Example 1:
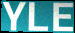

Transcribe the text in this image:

YLE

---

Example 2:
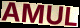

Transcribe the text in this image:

AMUL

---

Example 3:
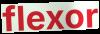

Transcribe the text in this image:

flexor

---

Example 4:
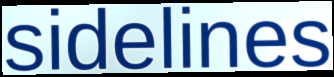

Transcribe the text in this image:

sidelines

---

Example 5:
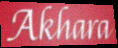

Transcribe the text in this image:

Akhara